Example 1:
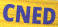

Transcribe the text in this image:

CNED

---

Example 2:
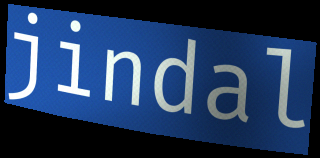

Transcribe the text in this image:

jindal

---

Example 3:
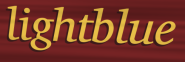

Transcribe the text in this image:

lightblue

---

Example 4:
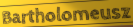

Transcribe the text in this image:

Bartholomeusz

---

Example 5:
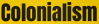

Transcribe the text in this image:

Colonialism